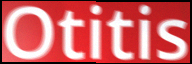
Otitis